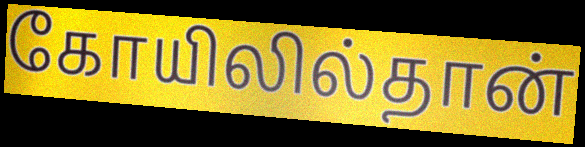
கோயிலில்தான்